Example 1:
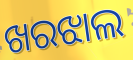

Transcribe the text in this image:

ଖରଝାଲ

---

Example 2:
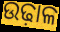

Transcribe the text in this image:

ଉଢ଼ାଳ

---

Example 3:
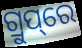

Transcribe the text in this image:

ଗ୍ରୁପ୍‌ରେ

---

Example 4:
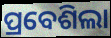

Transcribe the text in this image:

ପ୍ରବେଶିଲା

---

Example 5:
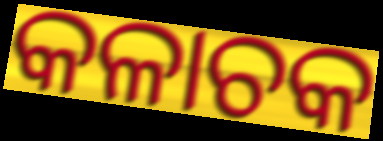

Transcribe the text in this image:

କଳାଚକ